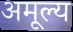
अमूल्‍य